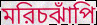
মরিচঝাঁপি